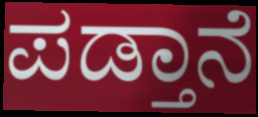
ಪಡ್ತಾನೆ